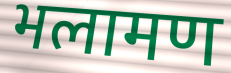
भलामण